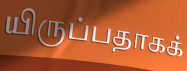
யிருப்பதாகக்